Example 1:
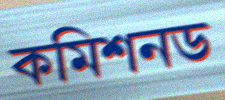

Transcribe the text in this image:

কমিশনড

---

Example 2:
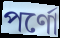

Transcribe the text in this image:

পর্ণো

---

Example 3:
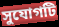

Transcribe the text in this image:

সুযোগটি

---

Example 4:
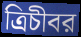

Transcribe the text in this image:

ত্রিচীবর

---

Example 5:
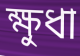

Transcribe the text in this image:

ক্ষুধা